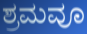
ಶ್ರಮವೂ